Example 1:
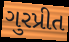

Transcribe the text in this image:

ગુરપ્રીત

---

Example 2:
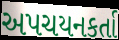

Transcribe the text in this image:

અપચયનકર્તા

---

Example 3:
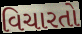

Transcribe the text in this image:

વિચારતો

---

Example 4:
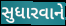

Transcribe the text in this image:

સુધારવાને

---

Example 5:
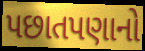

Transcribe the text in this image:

પછાતપણાનો